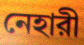
নেহারী